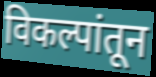
विकल्पांतून